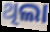
ଥିଲା